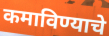
कमाविण्याचे